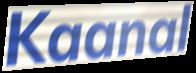
Kaanal